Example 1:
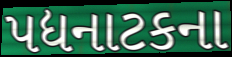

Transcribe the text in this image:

પદ્યનાટકના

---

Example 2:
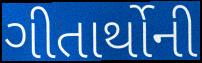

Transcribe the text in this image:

ગીતાર્થોની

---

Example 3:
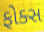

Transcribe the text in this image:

ફોક્સ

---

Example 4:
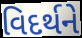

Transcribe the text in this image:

વિદર્થને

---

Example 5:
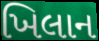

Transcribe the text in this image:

ખિલાન